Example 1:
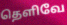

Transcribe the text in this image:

தெளிவே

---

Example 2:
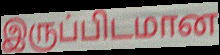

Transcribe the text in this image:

இருப்பிடமான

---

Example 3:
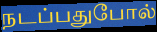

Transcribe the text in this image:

நடப்பதுபோல்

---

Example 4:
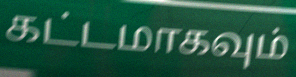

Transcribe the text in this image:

கட்டமாகவும்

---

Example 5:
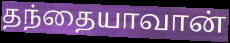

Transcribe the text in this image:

தந்தையாவான்